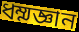
ধম্মজ্ঞান